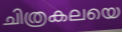
ചിത്രകലയെ